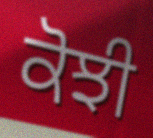
ਕੋਝੀ